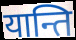
यान्ति